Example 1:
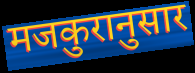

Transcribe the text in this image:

मजकुरानुसार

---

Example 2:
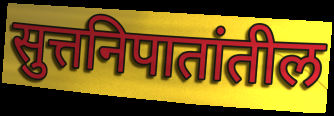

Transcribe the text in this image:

सुत्तनिपातांतील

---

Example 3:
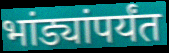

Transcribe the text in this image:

भांड्यांपर्यंत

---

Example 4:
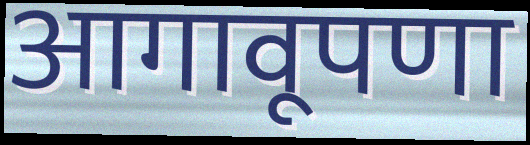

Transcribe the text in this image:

आगावूपणा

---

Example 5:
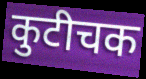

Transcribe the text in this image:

कुटीचक